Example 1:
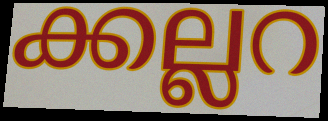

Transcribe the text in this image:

ക്കല്ലറ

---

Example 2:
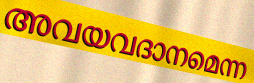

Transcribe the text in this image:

അവയവദാനമെന്ന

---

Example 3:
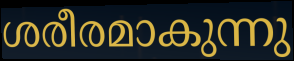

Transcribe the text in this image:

ശരീരമാകുന്നു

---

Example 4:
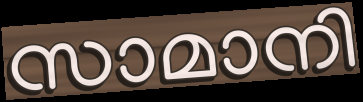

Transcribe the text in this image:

സാമാനി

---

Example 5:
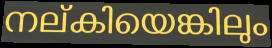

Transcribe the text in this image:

നല്‌കിയെങ്കിലും